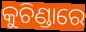
କୁଚିଣ୍ଡାରେ